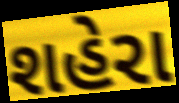
શહેરા